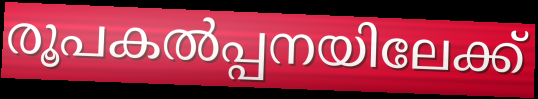
രൂപകൽപ്പനയിലേക്ക്